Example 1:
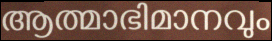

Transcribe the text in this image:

ആത്മാഭിമാനവും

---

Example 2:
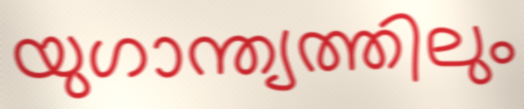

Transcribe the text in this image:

യുഗാന്ത്യത്തിലും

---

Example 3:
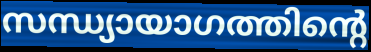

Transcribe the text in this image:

സന്ധ്യായാഗത്തിന്റെ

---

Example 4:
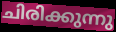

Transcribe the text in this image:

ചിരിക്കുന്നു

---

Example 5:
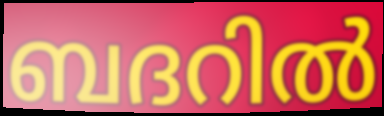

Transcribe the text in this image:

ബദറിൽ